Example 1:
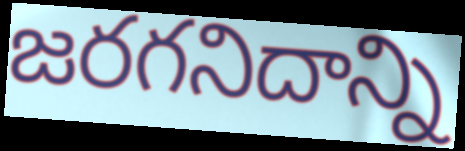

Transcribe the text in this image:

జరగనిదాన్ని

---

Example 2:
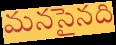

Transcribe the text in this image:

మనసైనది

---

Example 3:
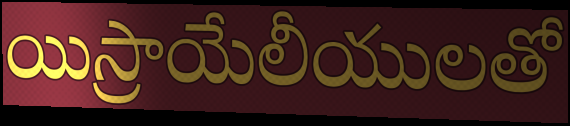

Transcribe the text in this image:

యిస్రాయేలీయులతో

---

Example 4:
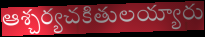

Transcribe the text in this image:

ఆశ్చర్యచకితులయ్యారు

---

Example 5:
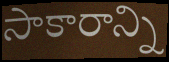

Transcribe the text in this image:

సాకారాన్ని